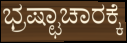
ಭ್ರಷ್ಟಾಚಾರಕ್ಕೆ